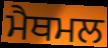
ਮੈਥਮਲ